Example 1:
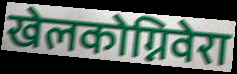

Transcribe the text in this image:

खेलकोग्निवेरा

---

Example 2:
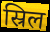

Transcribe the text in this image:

स्रिल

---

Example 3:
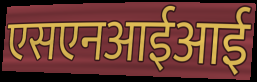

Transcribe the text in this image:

एसएनआईआई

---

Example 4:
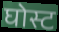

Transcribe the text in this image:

घोस्ट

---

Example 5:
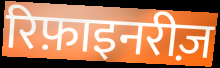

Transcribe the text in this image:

रिफ़ाइनरीज़